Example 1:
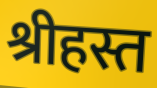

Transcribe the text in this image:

श्रीहस्त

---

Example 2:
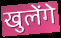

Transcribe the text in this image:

खुलेंगे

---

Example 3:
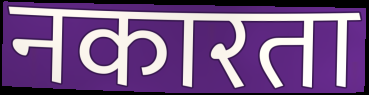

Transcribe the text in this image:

नकारता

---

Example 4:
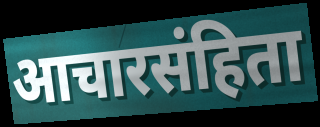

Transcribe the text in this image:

आचारसंहिता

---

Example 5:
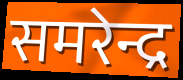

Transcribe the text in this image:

समरेन्द्र